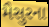
મૈસુરના